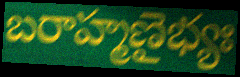
బరాహ్మణైభ్యః